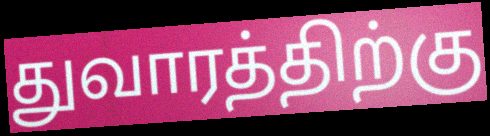
துவாரத்திற்கு